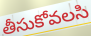
తీసుకోవలసి